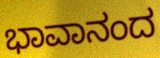
ಭಾವಾನಂದ